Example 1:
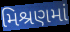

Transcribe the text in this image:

મિશ્રણમાં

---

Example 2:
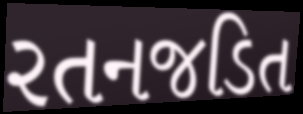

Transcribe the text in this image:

રતનજડિત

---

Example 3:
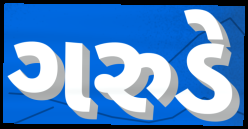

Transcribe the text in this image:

ગરુડે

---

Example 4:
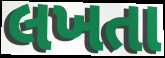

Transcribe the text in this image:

લખતા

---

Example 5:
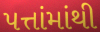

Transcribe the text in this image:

પત્તાંમાંથી